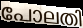
പോലതി